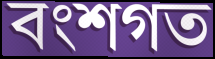
বংশগত